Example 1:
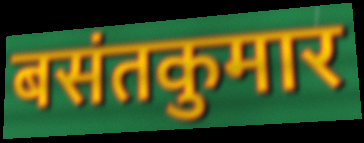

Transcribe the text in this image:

बसंतकुमार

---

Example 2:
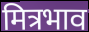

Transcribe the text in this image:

मित्रभाव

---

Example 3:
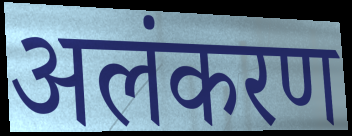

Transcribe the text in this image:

अलंकरण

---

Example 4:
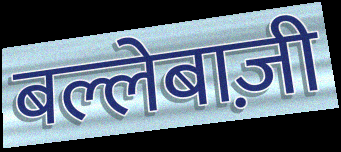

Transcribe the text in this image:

बल्लेबाज़ी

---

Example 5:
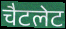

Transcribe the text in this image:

चैटलेट